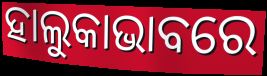
ହାଲୁକାଭାବରେ